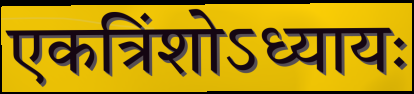
एकत्रिंशोऽध्यायः